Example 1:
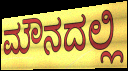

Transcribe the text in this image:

ಮೌನದಲ್ಲಿ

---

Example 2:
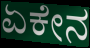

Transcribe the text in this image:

ಏಕೇನ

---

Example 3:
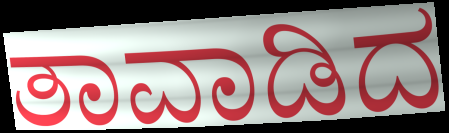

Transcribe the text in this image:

ತಾವಾಡಿದ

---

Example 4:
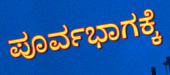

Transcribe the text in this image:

ಪೂರ್ವಭಾಗಕ್ಕೆ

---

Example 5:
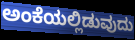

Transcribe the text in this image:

ಅಂಕೆಯಲ್ಲಿಡುವುದು